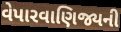
વેપારવાણિજ્યની